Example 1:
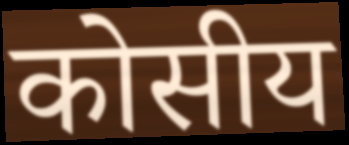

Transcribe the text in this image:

कोसीय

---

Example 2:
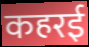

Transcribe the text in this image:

कहरई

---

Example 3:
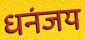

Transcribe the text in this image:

धनंजय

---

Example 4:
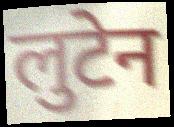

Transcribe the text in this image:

लुटेन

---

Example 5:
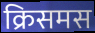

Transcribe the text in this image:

क्रिसमस